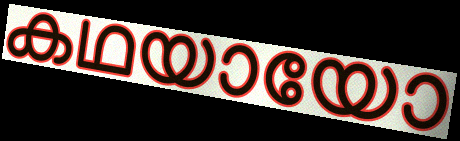
കഥയായോ